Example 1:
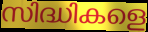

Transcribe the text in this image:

സിദ്ധികളെ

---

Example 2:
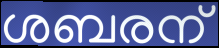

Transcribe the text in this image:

ശബരന്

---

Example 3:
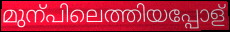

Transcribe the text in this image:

മുന്പിലെത്തിയപ്പോള്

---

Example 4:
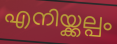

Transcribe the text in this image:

എനിയ്ക്കല്പം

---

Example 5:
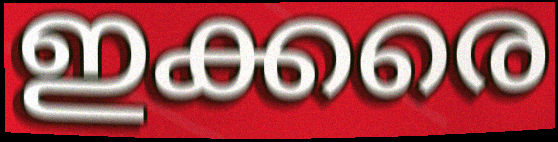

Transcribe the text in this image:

ഇക്കരെ